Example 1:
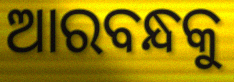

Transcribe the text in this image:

ଆରବନ୍ଧକୁ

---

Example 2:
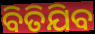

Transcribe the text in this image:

ବିତିଯିବ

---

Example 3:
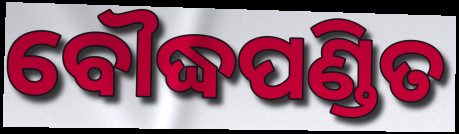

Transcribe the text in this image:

ବୌଦ୍ଧପଣ୍ଡିତ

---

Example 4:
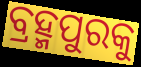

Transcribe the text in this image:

ବ୍ରହ୍ମପୁରକୁ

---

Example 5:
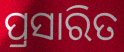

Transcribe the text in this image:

ପ୍ରସାରିତ